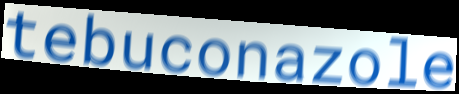
tebuconazole